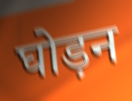
घोड़न